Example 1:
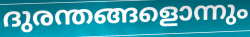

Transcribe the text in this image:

ദുരന്തങ്ങളൊന്നും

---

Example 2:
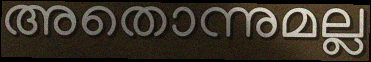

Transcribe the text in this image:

അതൊന്നുമല്ല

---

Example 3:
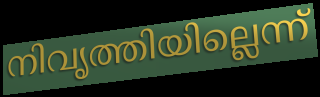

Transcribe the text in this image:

നിവൃത്തിയില്ലെന്ന്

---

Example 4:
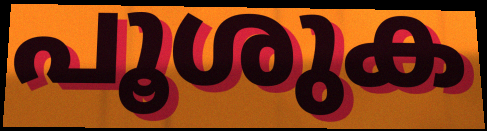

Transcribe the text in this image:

പൂശുക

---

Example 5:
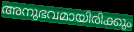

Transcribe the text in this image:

അനുഭവമായിരിക്കും